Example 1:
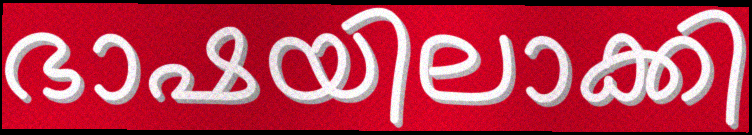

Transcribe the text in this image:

ഭാഷയിലാക്കി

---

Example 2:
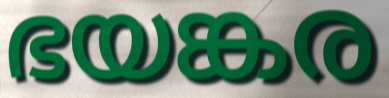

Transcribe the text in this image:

ഭയങ്കര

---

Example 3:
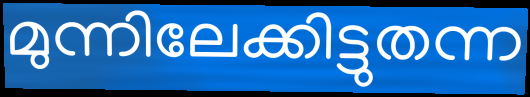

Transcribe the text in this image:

മുന്നിലേക്കിട്ടുതന്ന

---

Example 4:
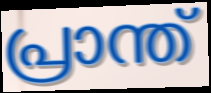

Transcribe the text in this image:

പ്രാന്ത്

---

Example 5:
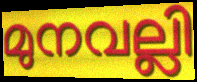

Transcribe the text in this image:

മുനവല്ലി